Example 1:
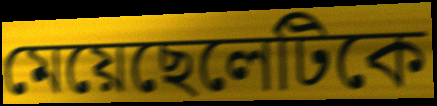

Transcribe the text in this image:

মেয়েছেলেটিকে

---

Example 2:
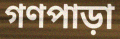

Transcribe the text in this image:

গণপাড়া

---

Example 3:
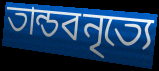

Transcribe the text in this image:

তান্ডবনৃত্যে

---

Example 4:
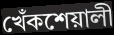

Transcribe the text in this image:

খেঁকশেয়ালী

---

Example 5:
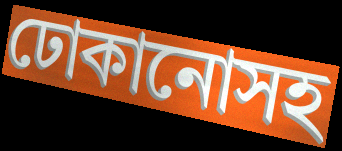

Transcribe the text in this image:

ঢোকানোসহ